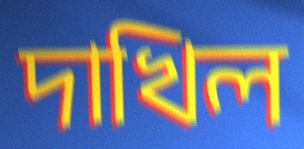
দাখিল